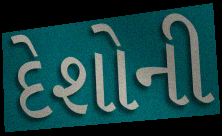
દેશોની